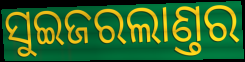
ସୁଇଜରଲାଣ୍ତର